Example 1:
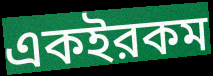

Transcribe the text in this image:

একইরকম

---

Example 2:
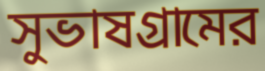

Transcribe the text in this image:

সুভাষগ্রামের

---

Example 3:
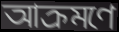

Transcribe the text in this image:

আক্রমণে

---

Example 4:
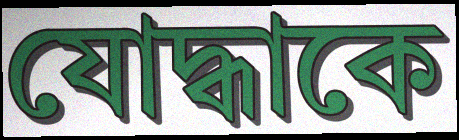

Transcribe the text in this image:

যোদ্ধাকে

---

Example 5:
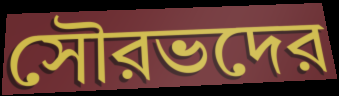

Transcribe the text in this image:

সৌরভদের